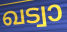
ഖട്വാ